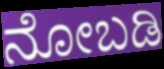
ನೋಬಡಿ